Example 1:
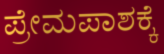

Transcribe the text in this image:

ಪ್ರೇಮಪಾಶಕ್ಕೆ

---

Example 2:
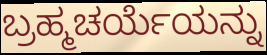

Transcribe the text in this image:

ಬ್ರಹ್ಮಚರ್ಯೆಯನ್ನು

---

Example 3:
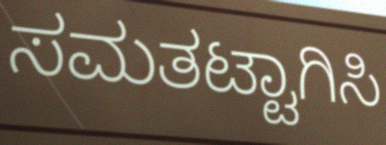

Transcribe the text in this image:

ಸಮತಟ್ಟಾಗಿಸಿ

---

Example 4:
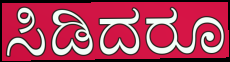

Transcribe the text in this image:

ಸಿಡಿದರೂ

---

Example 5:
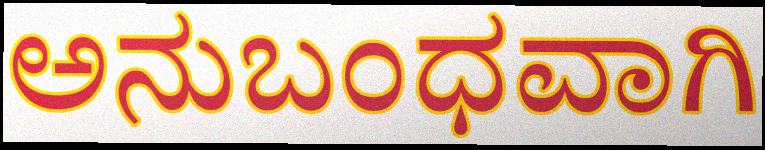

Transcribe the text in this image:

ಅನುಬಂಧವಾಗಿ